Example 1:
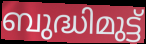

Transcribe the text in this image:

ബുദ്ധിമുട്ട്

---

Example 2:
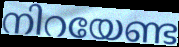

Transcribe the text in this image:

നിറയേണ്ട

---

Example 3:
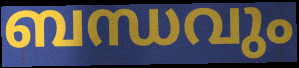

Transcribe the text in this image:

ബന്ധവും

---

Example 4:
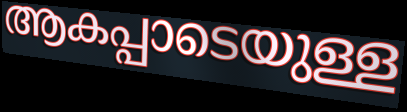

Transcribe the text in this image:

ആകപ്പാടെയുള്ള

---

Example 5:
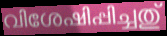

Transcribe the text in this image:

വിശേഷിപ്പിച്ചതു്